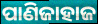
ପାଣିଜାହାଜ